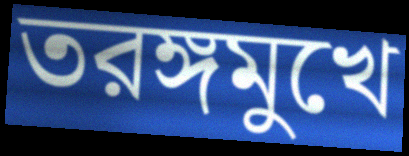
তরঙ্গমুখে